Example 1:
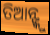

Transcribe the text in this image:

ତିଆନ୍ଙ୍କୁ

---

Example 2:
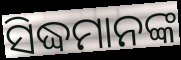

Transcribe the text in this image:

ସିଦ୍ଧମାନଙ୍କ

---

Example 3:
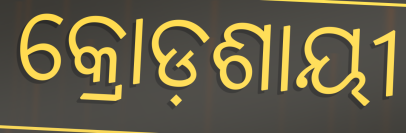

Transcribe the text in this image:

କ୍ରୋଡ଼ଶାୟୀ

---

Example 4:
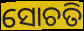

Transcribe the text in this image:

ସୋଚତି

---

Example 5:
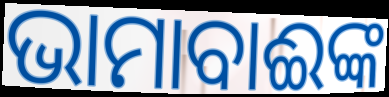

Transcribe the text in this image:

ଭାମାବାଈଙ୍କ